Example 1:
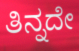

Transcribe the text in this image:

ತಿನ್ನದೇ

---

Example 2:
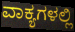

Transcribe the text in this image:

ವಾಕ್ಯಗಳಲ್ಲಿ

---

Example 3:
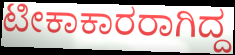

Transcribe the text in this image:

ಟೀಕಾಕಾರರಾಗಿದ್ದ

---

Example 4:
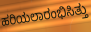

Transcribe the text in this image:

ಹರಿಯಲಾರಂಭಿಸಿತ್ತು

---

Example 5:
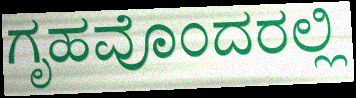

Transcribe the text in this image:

ಗೃಹವೊಂದರಲ್ಲಿ